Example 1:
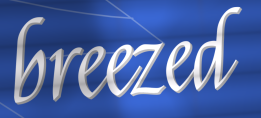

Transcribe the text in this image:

breezed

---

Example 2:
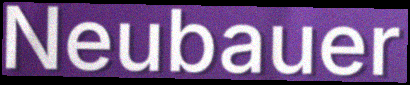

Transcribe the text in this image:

Neubauer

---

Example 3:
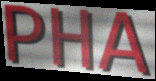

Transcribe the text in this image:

PHA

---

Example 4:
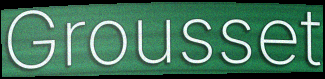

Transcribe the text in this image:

Grousset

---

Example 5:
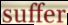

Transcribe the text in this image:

suffer